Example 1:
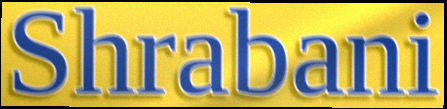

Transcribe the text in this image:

Shrabani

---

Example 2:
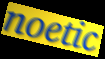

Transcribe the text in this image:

noetic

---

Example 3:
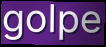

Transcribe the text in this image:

golpe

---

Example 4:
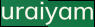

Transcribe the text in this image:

uraiyam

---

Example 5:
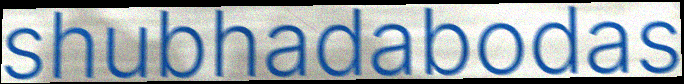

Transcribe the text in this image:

shubhadabodas